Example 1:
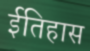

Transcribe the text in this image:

ईतिहास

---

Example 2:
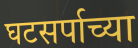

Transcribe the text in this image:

घटसर्पाच्या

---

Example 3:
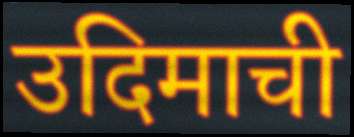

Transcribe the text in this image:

उदिमाची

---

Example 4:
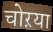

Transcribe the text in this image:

चोऱया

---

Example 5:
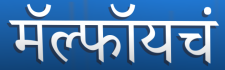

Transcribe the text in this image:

मॅल्फॉयचं